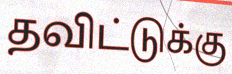
தவிட்டுக்கு